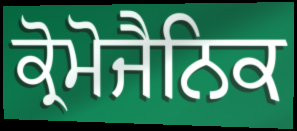
ਕ੍ਰੋਮੋਜੈਨਿਕ